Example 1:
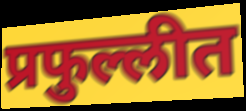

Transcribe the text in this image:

प्रफुल्लीत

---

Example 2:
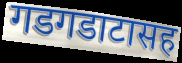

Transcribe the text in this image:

गडगडाटासह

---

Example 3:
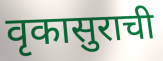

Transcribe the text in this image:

वृकासुराची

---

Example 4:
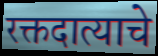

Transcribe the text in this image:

रक्तदात्याचे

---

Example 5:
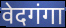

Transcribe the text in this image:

वेदगंगा